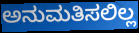
ಅನುಮತಿಸಲಿಲ್ಲ